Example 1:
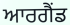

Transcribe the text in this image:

ਆਰਗੈਂਡ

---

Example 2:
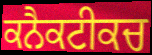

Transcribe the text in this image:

ਕਨੈਕਟੀਕਚ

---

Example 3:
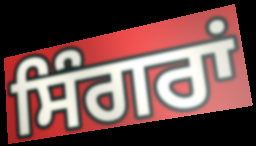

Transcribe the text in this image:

ਸਿੰਗਰਾਂ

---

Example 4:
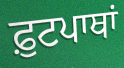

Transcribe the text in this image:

ਫ਼ੁਟਪਾਥਾਂ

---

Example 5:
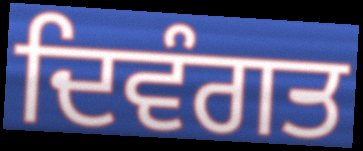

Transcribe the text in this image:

ਦਿਵੰਗਤ